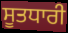
ਸੂਤਧਾਰੀ